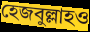
হেজবুল্লাহও